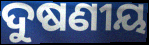
ଦୁଷଣୀୟ